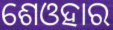
ଶେଓହାର